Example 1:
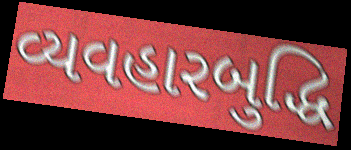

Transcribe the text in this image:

વ્યવહારબુદ્ધિ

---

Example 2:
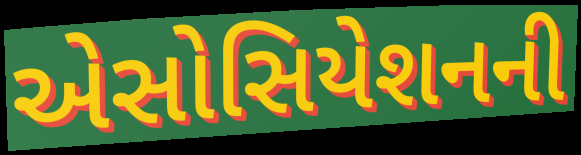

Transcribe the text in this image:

એસોસિયેશનની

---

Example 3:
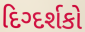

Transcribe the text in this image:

દિગ્દર્શકો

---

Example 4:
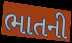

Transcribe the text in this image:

ભાતની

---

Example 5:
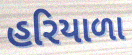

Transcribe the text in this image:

હરિયાળા